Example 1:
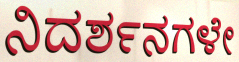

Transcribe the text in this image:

ನಿದರ್ಶನಗಳೇ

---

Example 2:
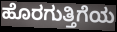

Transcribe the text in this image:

ಹೊರಗುತ್ತಿಗೆಯ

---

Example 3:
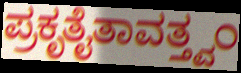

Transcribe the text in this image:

ಪ್ರಕೃತೈತಾವತ್ತ್ವಂ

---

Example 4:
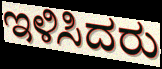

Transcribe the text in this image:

ಇಳಿಸಿದರು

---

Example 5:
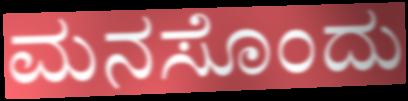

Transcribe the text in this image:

ಮನಸೊಂದು